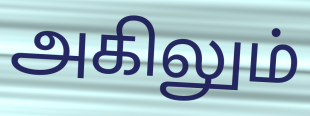
அகிலும்